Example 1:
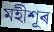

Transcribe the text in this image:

মহীশূৰ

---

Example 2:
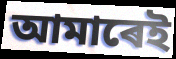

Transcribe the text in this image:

আমাৰেই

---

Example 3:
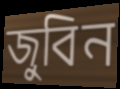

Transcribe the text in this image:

জুবিন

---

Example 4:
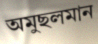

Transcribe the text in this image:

অমুছলমান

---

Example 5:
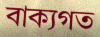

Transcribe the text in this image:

বাক্যগত